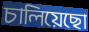
চালিয়েছো